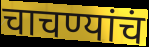
चाचण्यांचं